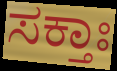
ಸಕ್ತಾಃ